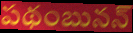
పథంబునన్